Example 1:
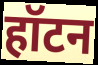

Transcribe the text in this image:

हॉटन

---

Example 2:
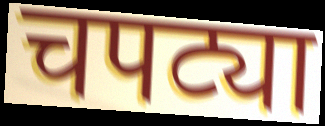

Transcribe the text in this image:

चपट्या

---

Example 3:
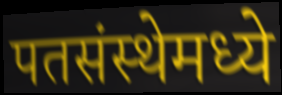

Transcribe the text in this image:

पतसंस्थेमध्ये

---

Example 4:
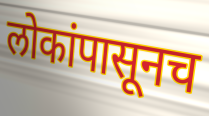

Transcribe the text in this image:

लोकांपासूनच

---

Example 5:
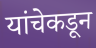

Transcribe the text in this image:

यांचेकडून